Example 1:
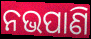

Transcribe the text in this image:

ନଭପାଣି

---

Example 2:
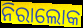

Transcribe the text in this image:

ନିରାଲୋକ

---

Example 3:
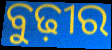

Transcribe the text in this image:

ବୁଢ଼ୀର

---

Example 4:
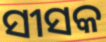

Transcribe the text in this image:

ସୀସକ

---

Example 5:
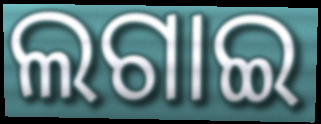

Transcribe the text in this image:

ଲଗାଇ